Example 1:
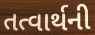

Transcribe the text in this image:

તત્વાર્થની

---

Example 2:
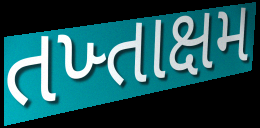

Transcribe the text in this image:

તખ્તાક્ષમ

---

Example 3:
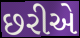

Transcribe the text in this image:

છરીએ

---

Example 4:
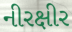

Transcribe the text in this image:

નીરક્ષીર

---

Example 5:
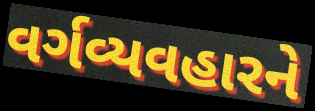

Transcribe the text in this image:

વર્ગવ્યવહારને